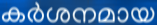
കർശനമായ